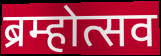
ब्रम्होत्सव